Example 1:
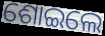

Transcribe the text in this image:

ଶୋଇଲେ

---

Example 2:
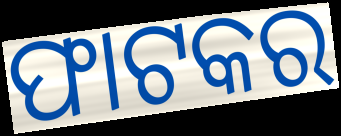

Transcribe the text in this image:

ଫାଟକର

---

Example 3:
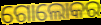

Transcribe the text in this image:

ଗୋଲୋକର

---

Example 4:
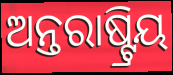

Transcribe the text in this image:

ଅନ୍ତରାଷ୍ଟ୍ରିୟ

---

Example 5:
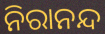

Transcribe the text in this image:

ନିରାନନ୍ଦ